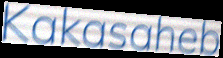
Kakasaheb